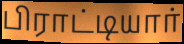
பிராட்டியார்